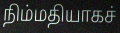
நிம்மதியாகச்